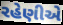
રહેણીએ